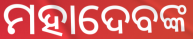
ମହାଦେବଙ୍କ